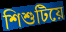
শিশুটিয়ে